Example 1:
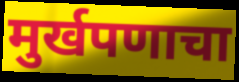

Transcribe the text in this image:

मुर्खपणाचा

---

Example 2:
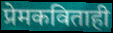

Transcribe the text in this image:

प्रेमकविताही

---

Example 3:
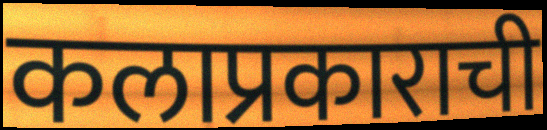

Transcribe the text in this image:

कलाप्रकाराची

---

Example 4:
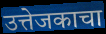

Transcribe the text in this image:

उत्तेजकाचा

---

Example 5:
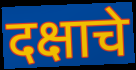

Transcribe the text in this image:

दक्षाचे